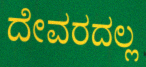
ದೇವರದಲ್ಲ